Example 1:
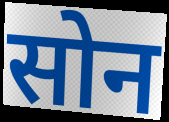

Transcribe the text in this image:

सोन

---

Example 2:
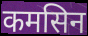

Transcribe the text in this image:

कमसिन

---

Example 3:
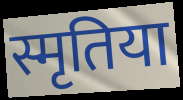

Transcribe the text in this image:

स्मृतिया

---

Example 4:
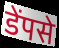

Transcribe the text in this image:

डेंपसे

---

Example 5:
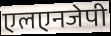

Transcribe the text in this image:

एलएनजेपी